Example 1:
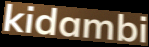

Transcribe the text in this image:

kidambi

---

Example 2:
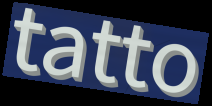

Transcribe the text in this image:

tatto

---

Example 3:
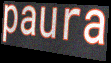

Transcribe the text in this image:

paura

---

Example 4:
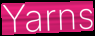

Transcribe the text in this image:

Yarns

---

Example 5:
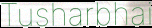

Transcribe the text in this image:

Tusharbhai